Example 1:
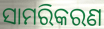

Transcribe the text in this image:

ସାମରିକରଣ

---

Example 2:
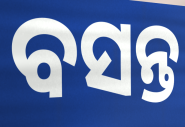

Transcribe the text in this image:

ବସନ୍ତ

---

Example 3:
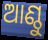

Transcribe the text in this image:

ଆଣ୍ଠୁ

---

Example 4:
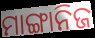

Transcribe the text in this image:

ମାଙ୍ଗାନିଜ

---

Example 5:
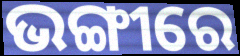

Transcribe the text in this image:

ଭଙ୍ଗୀରେ